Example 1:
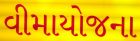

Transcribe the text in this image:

વીમાયોજના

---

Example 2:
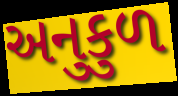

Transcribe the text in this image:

અનુકુળ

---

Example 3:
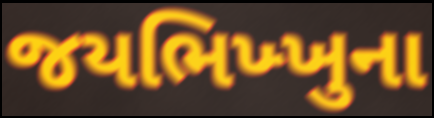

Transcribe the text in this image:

જયભિખ્ખુના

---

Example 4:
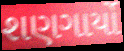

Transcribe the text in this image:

શણગાર્યો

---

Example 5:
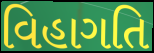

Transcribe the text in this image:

વિહાગતિ